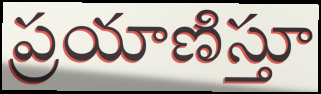
ప్రయాణిస్తూ